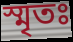
স্মৃতঃ